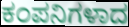
ಕಂಪನಿಗಳಾದ